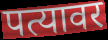
पत्यावर